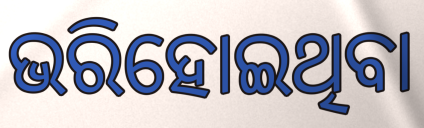
ଭରିହୋଇଥିବା